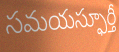
సమయస్ఫూర్తీ